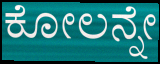
ಕೋಲನ್ನೇ